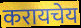
करायचेय